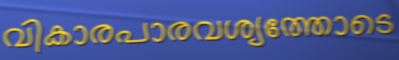
വികാരപാരവശ്യത്തോടെ